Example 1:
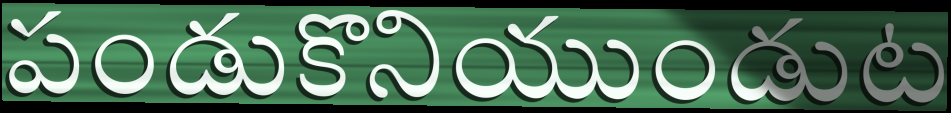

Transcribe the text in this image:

పండుకొనియుండుట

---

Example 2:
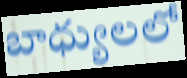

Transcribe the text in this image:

బాధ్యులలో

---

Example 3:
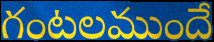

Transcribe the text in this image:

గంటలముందే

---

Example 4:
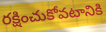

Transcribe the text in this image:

రక్షించుకోవటానికి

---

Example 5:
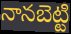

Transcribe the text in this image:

నానబెట్టి